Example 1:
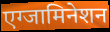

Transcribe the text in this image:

एग्‍जामिनेशन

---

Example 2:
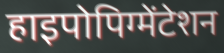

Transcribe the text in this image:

हाइपोपिग्मेंटेशन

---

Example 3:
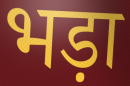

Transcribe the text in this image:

भड़ा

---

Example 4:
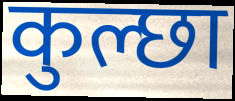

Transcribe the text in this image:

कुल्छा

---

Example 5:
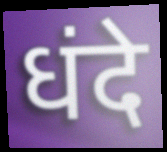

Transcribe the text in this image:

धंदे